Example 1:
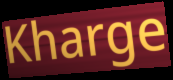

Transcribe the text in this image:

Kharge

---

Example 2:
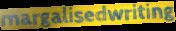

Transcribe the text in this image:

margalisedwriting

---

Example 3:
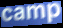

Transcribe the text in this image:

camp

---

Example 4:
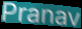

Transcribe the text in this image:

Pranav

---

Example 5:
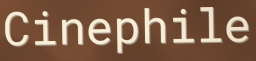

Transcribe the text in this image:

Cinephile